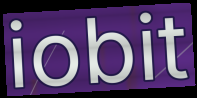
iobit